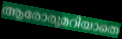
ആരോരുമറിയാതെ